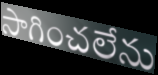
సాగించలేను